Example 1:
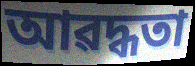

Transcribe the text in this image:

আৱদ্ধতা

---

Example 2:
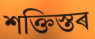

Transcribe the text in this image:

শক্তিস্তৰ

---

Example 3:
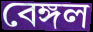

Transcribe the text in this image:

বেঙ্গল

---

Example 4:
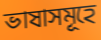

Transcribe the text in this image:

ভাষাসমূহে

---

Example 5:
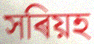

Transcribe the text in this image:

সৰিয়হ